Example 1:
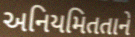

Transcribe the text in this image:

અનિયમિતતાને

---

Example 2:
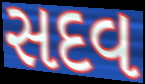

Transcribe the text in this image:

સદવ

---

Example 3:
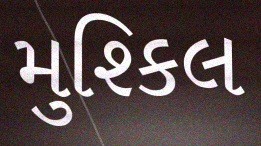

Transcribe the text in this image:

મુશ્કિલ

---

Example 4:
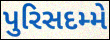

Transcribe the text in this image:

પુરિસદમ્મે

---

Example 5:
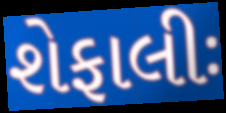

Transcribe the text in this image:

શેફાલીઃ